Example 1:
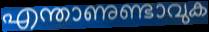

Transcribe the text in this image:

എന്താണുണ്ടാവുക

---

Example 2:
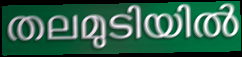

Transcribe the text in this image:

തലമുടിയിൽ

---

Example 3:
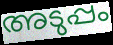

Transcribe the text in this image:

അടുപ്പം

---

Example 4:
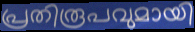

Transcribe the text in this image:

പ്രതിരൂപവുമായി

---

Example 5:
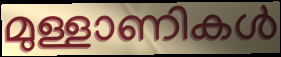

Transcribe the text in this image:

മുള്ളാണികൾ